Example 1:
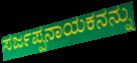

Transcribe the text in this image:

ಸರ್ಜಪ್ಪನಾಯಕನನ್ನು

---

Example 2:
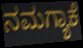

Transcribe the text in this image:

ನಮಗ್ಯಾಕೆ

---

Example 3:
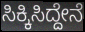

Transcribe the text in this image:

ಸಿಕ್ಕಿಸಿದ್ದೇನೆ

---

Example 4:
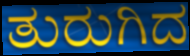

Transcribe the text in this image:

ತುರುಗಿದ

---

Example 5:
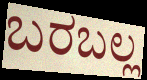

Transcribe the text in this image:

ಬರಬಲ್ಲ